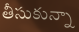
తీసుకున్నా